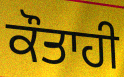
ਕੌਤਾਹੀ